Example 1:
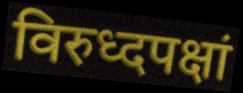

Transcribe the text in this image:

विरुध्दपक्षां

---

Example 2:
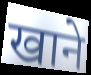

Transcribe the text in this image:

खाने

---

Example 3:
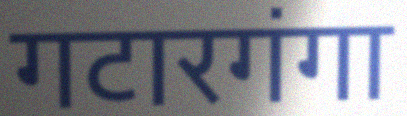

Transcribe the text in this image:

गटारगंगा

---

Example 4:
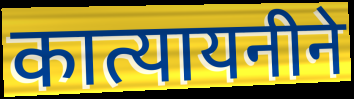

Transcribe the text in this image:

कात्यायनीने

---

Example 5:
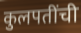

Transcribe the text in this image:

कुलपतींची